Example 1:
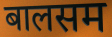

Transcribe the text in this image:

बालसम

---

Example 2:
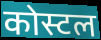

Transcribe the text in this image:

कोस्टल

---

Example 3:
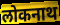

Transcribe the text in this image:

लोकनाथ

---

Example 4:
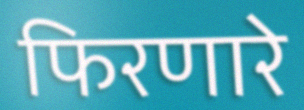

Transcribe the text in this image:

फिरणारे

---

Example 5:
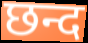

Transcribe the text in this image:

छन्द